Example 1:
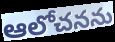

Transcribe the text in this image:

ఆలోచనను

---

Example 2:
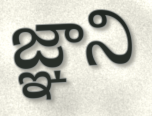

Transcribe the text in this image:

జ్ఞాని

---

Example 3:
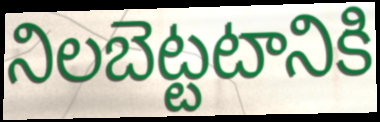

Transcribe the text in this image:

నిలబెట్టటానికి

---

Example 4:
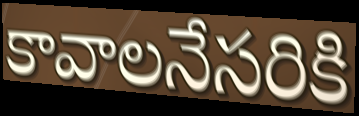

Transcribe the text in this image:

కావాలనేసరికి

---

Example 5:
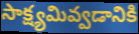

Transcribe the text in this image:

సాక్ష్యమివ్వడానికి